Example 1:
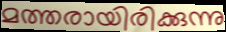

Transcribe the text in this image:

മത്തരായിരിക്കുന്നു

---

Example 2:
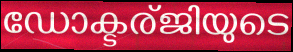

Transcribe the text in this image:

ഡോക്ടര്ജിയുടെ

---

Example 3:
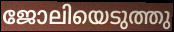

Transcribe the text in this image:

ജോലിയെടുത്തു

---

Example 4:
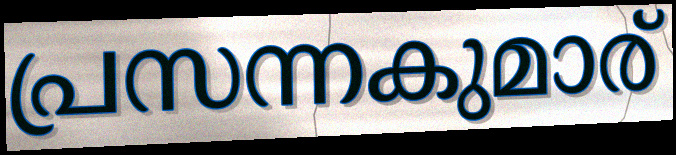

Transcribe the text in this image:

പ്രസന്നകുമാര്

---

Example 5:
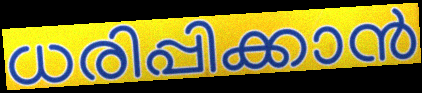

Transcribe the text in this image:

ധരിപ്പിക്കാൻ